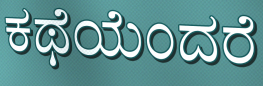
ಕಥೆಯೆಂದರೆ